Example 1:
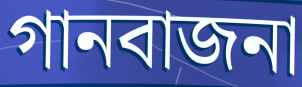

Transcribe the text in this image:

গানবাজনা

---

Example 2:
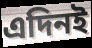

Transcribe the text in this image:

এদিনই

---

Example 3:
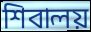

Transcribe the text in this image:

শিবালয়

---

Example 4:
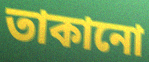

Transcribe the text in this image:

তাকানো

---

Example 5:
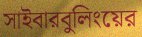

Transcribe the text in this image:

সাইবারবুলিংয়ের